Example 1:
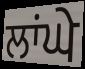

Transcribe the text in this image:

ਲਾਂਘੇ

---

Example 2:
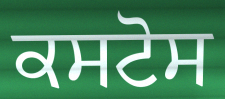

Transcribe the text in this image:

ਕਸਟੋਸ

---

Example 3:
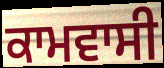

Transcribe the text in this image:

ਕਾਮਵਾਸੀ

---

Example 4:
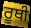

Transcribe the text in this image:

ਰੂਥੀ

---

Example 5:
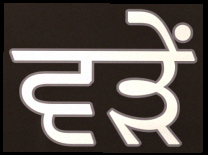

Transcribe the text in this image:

ਵੜੇਂ